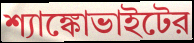
শ্যাঙ্কোভাইটের